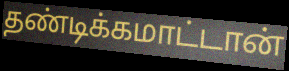
தண்டிக்கமாட்டான்